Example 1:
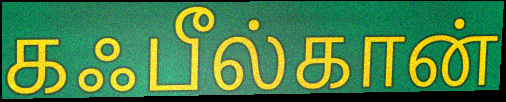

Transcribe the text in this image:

கஃபீல்கான்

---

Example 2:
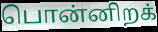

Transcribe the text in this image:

பொன்னிறக்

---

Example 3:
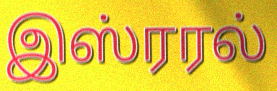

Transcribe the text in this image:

இஸ்ரரல்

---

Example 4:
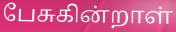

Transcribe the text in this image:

பேசுகின்றாள்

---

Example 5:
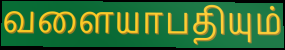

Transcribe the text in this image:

வளையாபதியும்